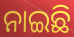
ନାଇଛି